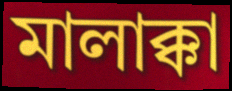
মালাক্কা